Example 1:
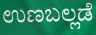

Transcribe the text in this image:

ಉಣಬಲ್ಲಡೆ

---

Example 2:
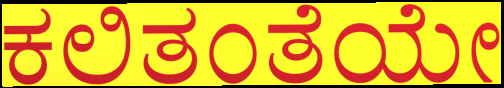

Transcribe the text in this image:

ಕಲಿತಂತೆಯೇ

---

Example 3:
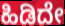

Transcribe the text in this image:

ಹಿಡಿದೇ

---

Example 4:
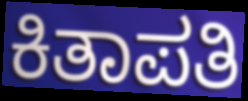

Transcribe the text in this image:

ಕಿತಾಪತಿ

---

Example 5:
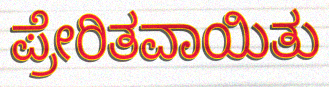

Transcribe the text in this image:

ಪ್ರೇರಿತವಾಯಿತು